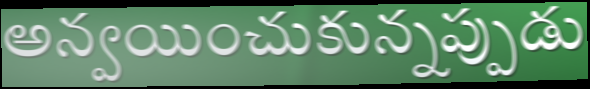
అన్వయించుకున్నప్పుడు